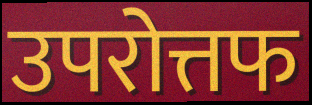
उपरोत्तफ